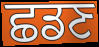
ਛਡਣ